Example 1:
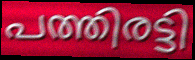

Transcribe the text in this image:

പത്തിരട്ടി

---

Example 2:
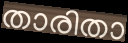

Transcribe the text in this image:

താരിതാ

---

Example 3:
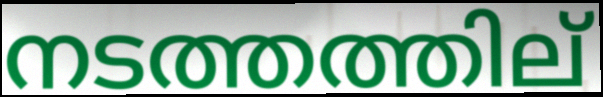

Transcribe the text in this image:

നടത്തത്തില്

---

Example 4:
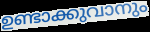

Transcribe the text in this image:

ഉണ്ടാക്കുവാനും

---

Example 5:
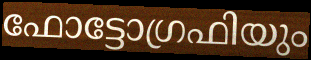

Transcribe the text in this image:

ഫോട്ടോഗ്രഫിയും